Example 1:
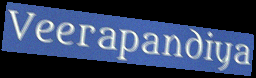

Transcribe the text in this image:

Veerapandiya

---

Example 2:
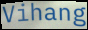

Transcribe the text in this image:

Vihang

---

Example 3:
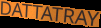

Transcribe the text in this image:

DATTATRAY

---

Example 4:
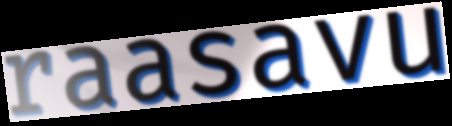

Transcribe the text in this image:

raasavu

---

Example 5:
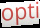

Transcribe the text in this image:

opti